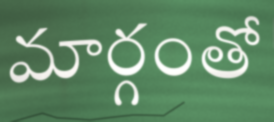
మార్గంతో